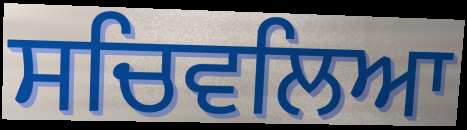
ਸਚਿਵਲਿਆ